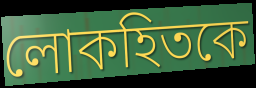
লোকহিতকে